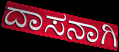
ದಾಸನಾಗಿ